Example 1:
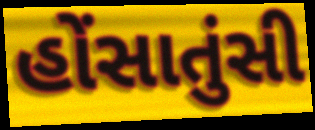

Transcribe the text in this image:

હોંસાતુંસી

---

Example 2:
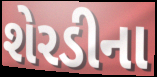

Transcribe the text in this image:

શેરડીના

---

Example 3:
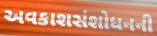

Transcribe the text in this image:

અવકાશસંશોધનની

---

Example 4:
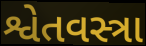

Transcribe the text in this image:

શ્વેતવસ્ત્રા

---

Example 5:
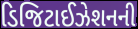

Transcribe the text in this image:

ડિજિટાઈઝેશનની